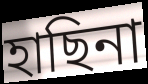
হাছিনা